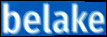
belake